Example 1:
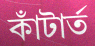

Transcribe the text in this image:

কাঁটার্ত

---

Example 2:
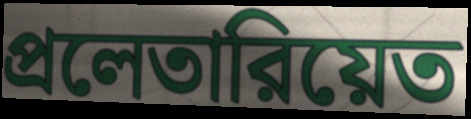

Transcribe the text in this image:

প্রলেতারিয়েত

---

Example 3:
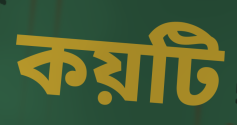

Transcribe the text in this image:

কয়টি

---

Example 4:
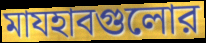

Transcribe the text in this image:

মাযহাবগুলোর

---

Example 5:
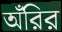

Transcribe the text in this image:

অঁরির